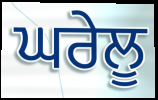
ਘਰੇਲੂ